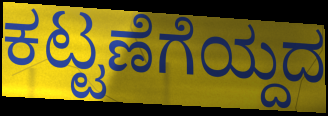
ಕಟ್ಟಣೆಗೆಯ್ದದ